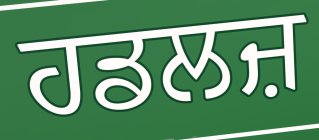
ਹਡਲਜ਼